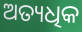
ଅତ୍ୟଧିକ